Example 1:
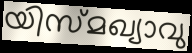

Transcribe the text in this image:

യിസ്മഖ്യാവു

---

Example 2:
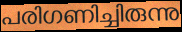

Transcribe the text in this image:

പരിഗണിച്ചിരുന്നു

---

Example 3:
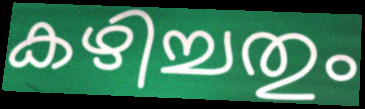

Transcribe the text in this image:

കഴിച്ചതും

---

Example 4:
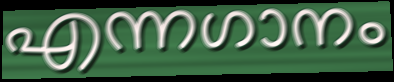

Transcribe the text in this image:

എന്നഗാനം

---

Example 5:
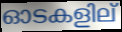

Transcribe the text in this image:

ഓടകളില്